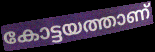
കോട്ടയത്താണ്